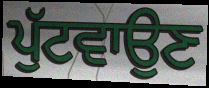
ਪੁੱਟਵਾਉਣ